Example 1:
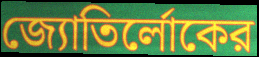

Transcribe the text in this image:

জ্যোতির্লোকের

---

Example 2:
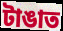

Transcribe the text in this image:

টাঙাত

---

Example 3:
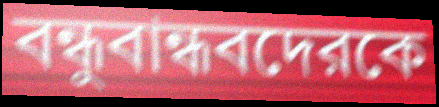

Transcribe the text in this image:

বন্ধুবান্ধবদেরকে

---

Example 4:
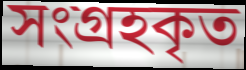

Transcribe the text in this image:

সংগ্রহকৃত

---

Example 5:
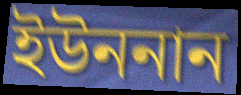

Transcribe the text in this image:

ইউননান